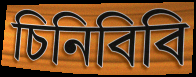
চিনিবিবি